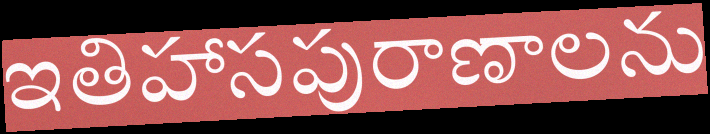
ఇతిహాసపురాణాలను